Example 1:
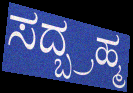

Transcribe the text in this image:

ಸದ್ಬ್ರಹ್ಮ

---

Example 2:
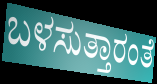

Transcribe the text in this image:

ಬಳಸುತ್ತಾರಂತೆ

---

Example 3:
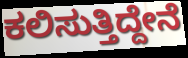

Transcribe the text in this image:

ಕಲಿಸುತ್ತಿದ್ದೇನೆ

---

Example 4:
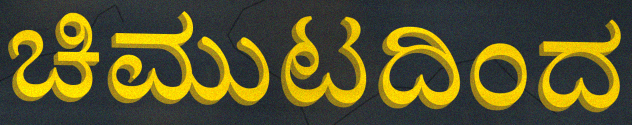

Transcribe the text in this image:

ಚಿಮುಟದಿಂದ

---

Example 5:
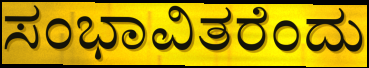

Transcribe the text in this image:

ಸಂಭಾವಿತರೆಂದು